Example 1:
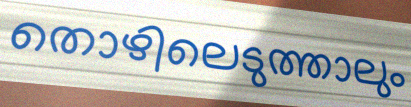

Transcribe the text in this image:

തൊഴിലെടുത്താലും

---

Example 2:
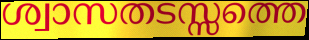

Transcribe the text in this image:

ശ്വാസതടസ്സത്തെ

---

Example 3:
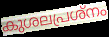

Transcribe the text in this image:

കുശലപ്രശ്നം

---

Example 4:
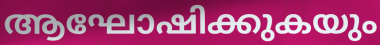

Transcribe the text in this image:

ആഘോഷിക്കുകയും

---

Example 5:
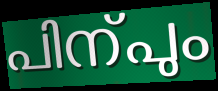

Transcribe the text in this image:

പിന്പും